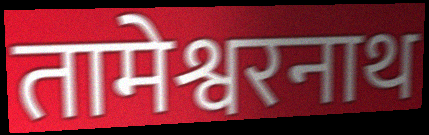
तामेश्वरनाथ